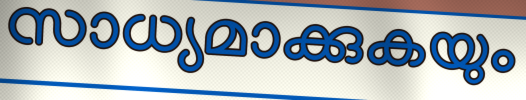
സാധ്യമാക്കുകയും